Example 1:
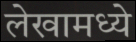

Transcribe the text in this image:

लेखामध्ये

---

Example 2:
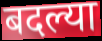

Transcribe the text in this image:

बदल्या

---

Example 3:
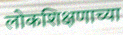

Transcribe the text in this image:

लोकशिक्षणाच्या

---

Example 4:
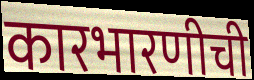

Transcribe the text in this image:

कारभारणीची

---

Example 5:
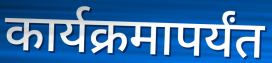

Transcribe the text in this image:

कार्यक्रमापर्यंत